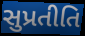
સુપ્રતીતિ